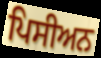
ਪਿਸੀਅਨ